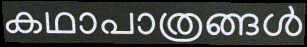
കഥാപാത്രങ്ങൾ